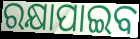
ରକ୍ଷାପାଇବ